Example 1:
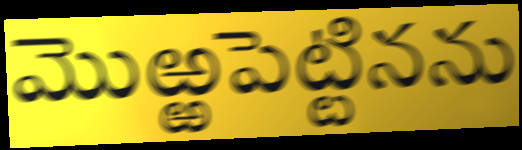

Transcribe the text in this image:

మొఱ్ఱపెట్టినను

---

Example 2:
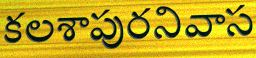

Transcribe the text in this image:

కలశాపురనివాస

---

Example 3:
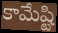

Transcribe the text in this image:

కామేష్టి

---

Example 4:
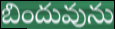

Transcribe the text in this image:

బిందువును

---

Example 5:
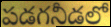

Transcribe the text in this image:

పడగనీడలో